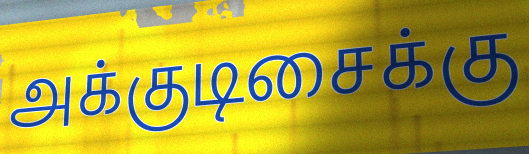
அக்குடிசைக்கு